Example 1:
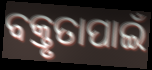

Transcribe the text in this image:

ବକ୍ତୃତାପାଇଁ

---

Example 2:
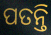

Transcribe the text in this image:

ପତନ୍ତି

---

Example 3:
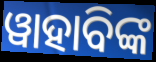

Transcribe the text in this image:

ୱାହାବିଙ୍କ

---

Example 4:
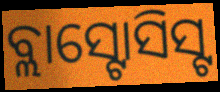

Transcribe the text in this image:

ବ୍ଲାସ୍ଟୋସିସ୍ଟ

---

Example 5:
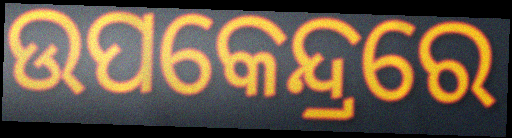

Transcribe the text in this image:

ଉପକେନ୍ଦ୍ରରେ